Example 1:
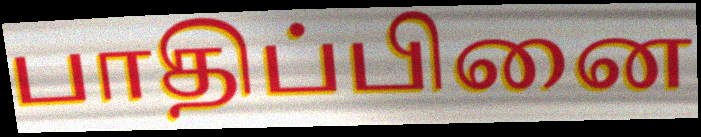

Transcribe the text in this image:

பாதிப்பினை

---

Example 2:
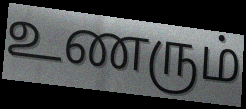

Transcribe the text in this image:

உணரும்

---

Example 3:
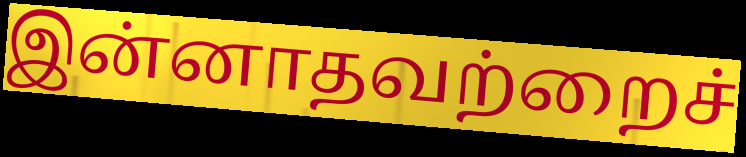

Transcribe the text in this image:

இன்னாதவற்றைச்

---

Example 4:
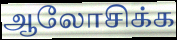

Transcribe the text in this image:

ஆலோசிக்க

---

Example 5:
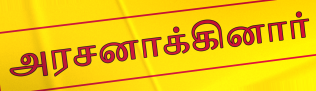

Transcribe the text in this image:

அரசனாக்கினார்